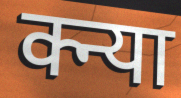
क्न्या